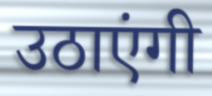
उठाएंगी